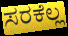
ಸರಕೆಲ್ಲ